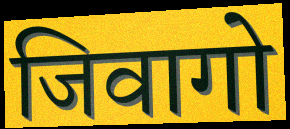
जिवागो